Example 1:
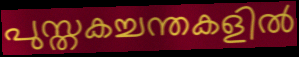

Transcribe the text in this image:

പുസ്തകച്ചന്തകളിൽ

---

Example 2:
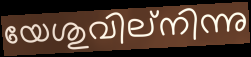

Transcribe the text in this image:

യേശുവില്നിന്നു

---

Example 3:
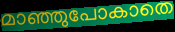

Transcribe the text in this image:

മാഞ്ഞുപോകാതെ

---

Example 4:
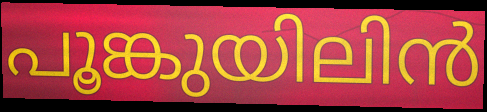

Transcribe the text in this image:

പൂങ്കുയിലിൻ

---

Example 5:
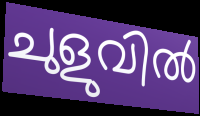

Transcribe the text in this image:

ചുളുവിൽ